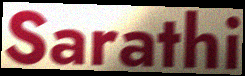
Sarathi